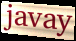
javay